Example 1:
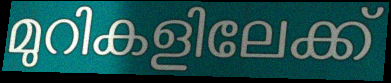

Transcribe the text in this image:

മുറികളിലേക്ക്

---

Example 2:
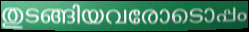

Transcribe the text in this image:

തുടങ്ങിയവരോടൊപ്പം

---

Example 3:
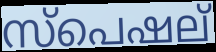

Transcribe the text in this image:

സ്പെഷല്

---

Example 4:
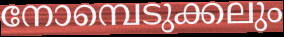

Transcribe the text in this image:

നോമ്പെടുക്കലും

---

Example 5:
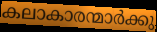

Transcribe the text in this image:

കലാകാരന്മാർക്കു